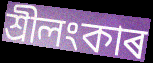
শ্ৰীলংকাৰ